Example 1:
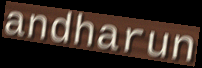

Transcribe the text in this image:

andharun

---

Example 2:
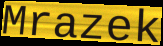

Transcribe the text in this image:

Mrazek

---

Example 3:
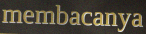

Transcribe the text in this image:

membacanya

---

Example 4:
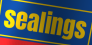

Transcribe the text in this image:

sealings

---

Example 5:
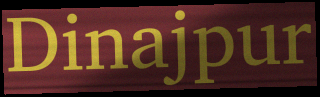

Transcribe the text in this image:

Dinajpur